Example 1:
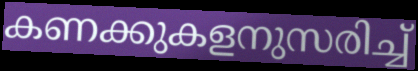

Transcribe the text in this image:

കണക്കുകളനുസരിച്ച്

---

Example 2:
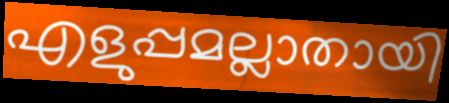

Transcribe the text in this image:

എളുപ്പമല്ലാതായി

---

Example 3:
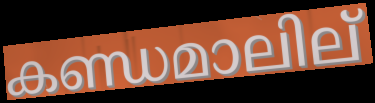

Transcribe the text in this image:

കണ്ഡമാലില്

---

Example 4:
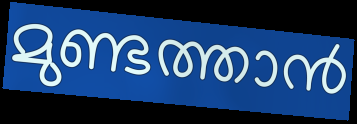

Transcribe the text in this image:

മുണ്ടത്താൻ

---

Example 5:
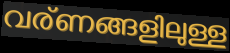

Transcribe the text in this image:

വര്ണങ്ങളിലുള്ള